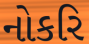
નોકરિ